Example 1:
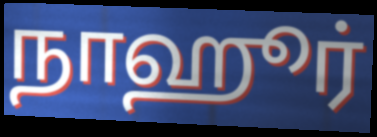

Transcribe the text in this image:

நாஹூர்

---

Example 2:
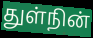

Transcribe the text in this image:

துள்நின்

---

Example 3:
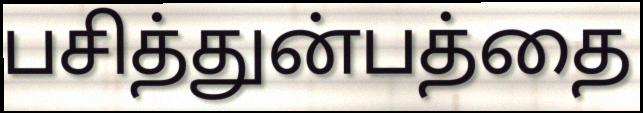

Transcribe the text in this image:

பசித்துன்பத்தை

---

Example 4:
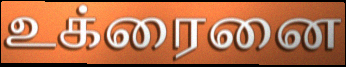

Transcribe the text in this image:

உக்ரைனை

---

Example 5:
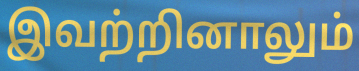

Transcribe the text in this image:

இவற்றினாலும்